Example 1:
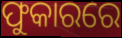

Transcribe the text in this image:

ଫୁକାରରେ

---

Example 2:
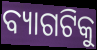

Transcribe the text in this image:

ବ୍ୟାଗଟିକୁ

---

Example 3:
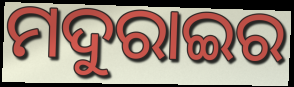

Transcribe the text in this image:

ମଦୁରାଇର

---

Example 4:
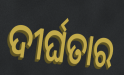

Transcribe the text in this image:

ଦୀର୍ଘତାର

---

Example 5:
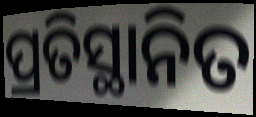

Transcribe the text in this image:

ପ୍ରତିସ୍ଥାନିତ